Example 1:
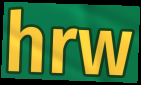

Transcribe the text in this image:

hrw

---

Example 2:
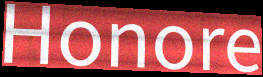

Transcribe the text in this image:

Honore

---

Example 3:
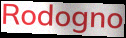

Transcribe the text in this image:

Rodogno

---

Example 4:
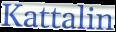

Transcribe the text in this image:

Kattalin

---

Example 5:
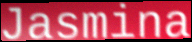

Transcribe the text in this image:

Jasmina